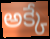
అక్కే